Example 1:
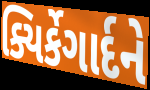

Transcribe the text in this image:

ક્યિર્કેગાર્દને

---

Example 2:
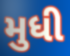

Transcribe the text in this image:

મુધી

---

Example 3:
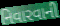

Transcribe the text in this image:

નિવારવાની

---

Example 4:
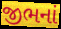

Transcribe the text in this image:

જીભનાં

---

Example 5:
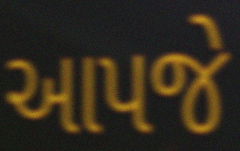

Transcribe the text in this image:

આપજે